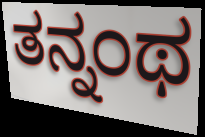
ತನ್ನಂಥ